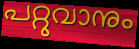
പറ്റുവാനും